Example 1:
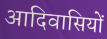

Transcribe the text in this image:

आदिवासियों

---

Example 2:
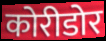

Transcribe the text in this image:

कोरीडोर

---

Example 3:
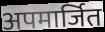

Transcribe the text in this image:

अपमार्जित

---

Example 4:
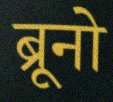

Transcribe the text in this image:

ब्रूनो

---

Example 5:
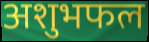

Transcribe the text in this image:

अशुभफल